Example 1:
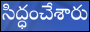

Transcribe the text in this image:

సిద్ధంచేశారు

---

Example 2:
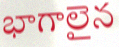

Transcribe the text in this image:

భాగాలైన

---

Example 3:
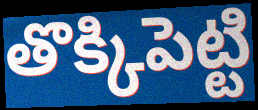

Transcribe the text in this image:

తొక్కిపెట్టి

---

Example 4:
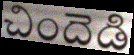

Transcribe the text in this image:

చిందెడి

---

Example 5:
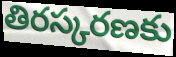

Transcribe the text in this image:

తిరస్కరణకు